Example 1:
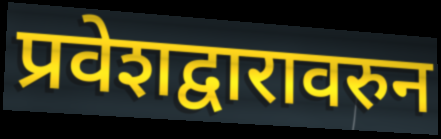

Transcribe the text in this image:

प्रवेशद्वारावरुन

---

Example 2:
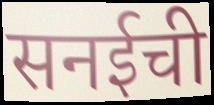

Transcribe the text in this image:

सनईची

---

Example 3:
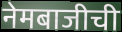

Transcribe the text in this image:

नेमबाजीची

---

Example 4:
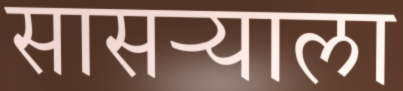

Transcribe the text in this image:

सासऱ्याला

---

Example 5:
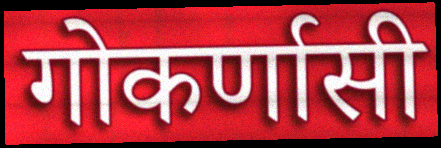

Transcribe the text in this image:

गोकर्णासी